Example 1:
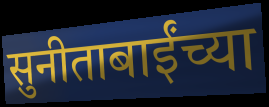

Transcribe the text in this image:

सुनीताबाईंच्या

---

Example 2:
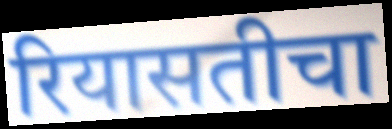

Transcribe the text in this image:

रियासतीचा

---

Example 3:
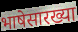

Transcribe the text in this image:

भाषेसारख्या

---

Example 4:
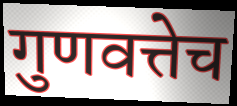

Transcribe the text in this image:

गुणवत्तेच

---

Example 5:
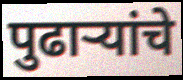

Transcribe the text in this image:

पुढाऱ्यांचे